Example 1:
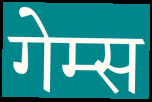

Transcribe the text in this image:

गेम्स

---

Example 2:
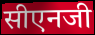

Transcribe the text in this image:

सीएनजी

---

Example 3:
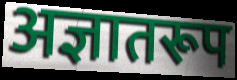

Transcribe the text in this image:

अज्ञातरूप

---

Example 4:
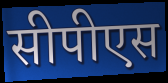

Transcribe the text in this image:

सीपीएस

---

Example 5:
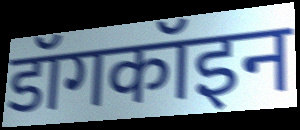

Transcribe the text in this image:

डॉगकॉइन